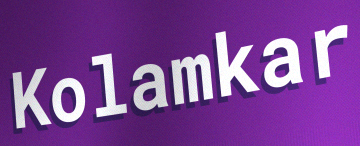
Kolamkar